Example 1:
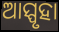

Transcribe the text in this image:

ଆସ୍ପୃହା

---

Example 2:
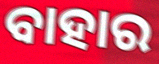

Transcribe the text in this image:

ବାହାର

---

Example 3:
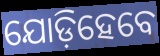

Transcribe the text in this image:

ଯୋଡ଼ିହେବେ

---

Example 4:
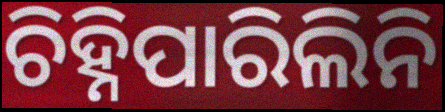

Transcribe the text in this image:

ଚିହ୍ନିପାରିଲିନି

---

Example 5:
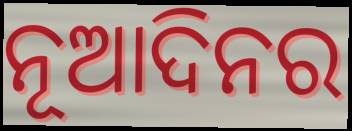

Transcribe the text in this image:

ନୂଆଦିନର